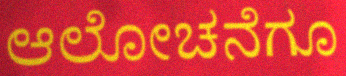
ಆಲೋಚನೆಗೂ